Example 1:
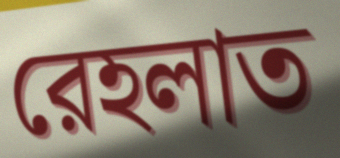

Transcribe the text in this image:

রেহলাত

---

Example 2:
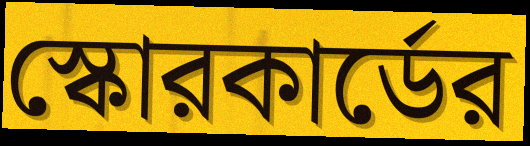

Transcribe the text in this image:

স্কোরকার্ডের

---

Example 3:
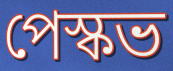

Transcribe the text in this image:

পেস্কভ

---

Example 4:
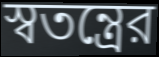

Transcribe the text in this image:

স্বতন্ত্রের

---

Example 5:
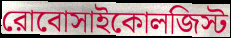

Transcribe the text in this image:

রোবোসাইকোলজিস্ট